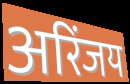
अरिंजय